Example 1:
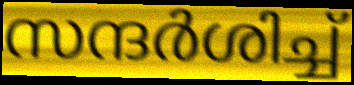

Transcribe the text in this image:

സന്ദർശിച്ച്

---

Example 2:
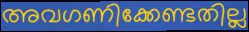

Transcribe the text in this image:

അവഗണിക്കേണ്ടതില്ല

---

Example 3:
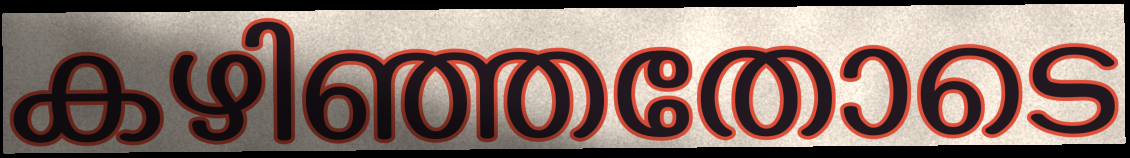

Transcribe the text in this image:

കഴിഞ്ഞതോടെ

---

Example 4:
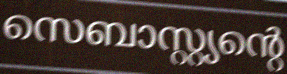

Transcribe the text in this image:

സെബാസ്റ്റ്യന്റെ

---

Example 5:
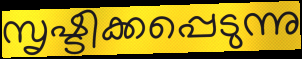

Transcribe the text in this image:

സൃഷ്ടിക്കപ്പെടുന്നു